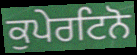
ਕੁਪੇਰਟਿਨੋ